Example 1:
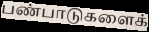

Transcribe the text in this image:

பண்பாடுகளைக்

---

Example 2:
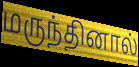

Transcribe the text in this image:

மருந்தினால்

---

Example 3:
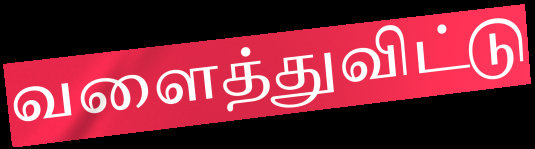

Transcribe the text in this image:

வளைத்துவிட்டு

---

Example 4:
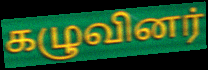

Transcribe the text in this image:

கழுவினர்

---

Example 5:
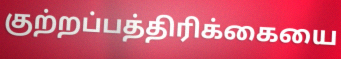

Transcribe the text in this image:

குற்றப்பத்திரிக்கையை